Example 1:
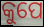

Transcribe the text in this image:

କୁପେ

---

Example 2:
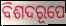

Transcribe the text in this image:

ବିଶଦରୂପେ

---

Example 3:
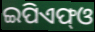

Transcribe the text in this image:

ଇପିଏଫ୍ଓ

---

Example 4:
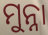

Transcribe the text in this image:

ମୁନ୍ନା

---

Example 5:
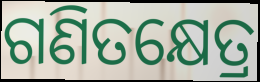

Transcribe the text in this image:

ଗଣିତକ୍ଷେତ୍ର